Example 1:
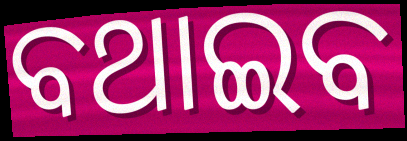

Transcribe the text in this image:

ବଥାଇବ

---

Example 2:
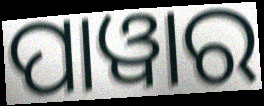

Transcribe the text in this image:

ପାୱାର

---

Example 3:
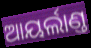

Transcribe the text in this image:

ଆୟର୍ଲାଣ୍ତ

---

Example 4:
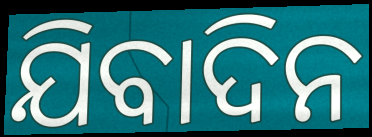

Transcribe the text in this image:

ଯିବାଦିନ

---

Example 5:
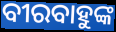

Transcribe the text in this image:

ବୀରବାହୁଙ୍କ